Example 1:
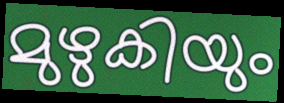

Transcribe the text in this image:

മുഴുകിയും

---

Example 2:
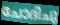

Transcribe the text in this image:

ചോദിചു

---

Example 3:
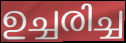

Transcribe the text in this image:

ഉച്ചരിച്ച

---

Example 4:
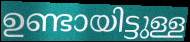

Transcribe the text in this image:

ഉണ്ടായിട്ടുള്ള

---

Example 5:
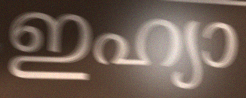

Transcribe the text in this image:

ഇഹ്യാ